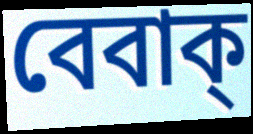
বেবাক্